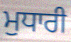
ਮੁਧਾਰੀ